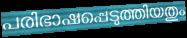
പരിഭാഷപ്പെടുത്തിയതും